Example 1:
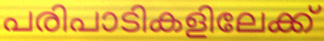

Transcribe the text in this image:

പരിപാടികളിലേക്ക്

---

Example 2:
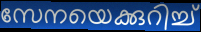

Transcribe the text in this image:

സേനയെക്കുറിച്ച്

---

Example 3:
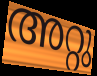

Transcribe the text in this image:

അറ്റു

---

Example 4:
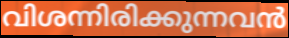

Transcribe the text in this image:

വിശന്നിരിക്കുന്നവൻ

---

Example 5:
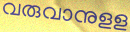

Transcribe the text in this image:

വരുവാനുളള